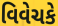
વિવેચકે